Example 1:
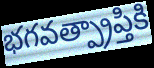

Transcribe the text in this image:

భగవత్ప్రాప్తికి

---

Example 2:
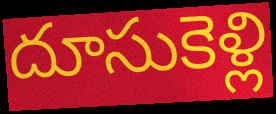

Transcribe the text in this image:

దూసుకెళ్లి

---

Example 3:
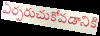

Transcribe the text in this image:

ఏర్పరుచుకోవడానికి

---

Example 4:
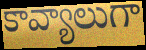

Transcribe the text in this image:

కావ్యాలుగా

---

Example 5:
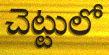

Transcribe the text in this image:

చెట్టులో